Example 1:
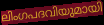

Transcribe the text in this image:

ലിംഗപദവിയുമായി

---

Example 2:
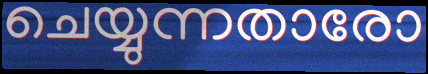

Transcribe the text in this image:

ചെയ്യുന്നതാരോ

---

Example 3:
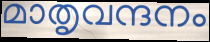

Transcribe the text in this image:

മാതൃവന്ദനം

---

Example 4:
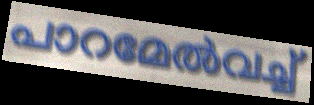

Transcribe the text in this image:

പാറമേൽവച്ച്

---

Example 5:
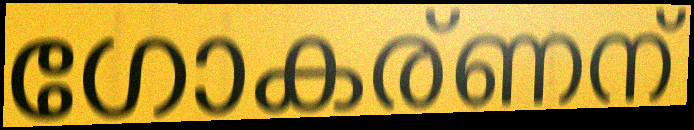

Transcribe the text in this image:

ഗോകര്ണന്